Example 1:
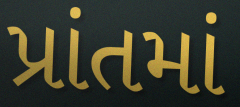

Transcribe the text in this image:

પ્રાંતમાં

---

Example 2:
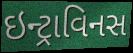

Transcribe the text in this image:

ઇન્ટ્રાવિનસ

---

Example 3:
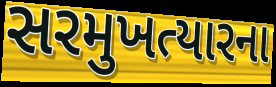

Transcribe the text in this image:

સરમુખત્યારના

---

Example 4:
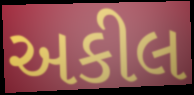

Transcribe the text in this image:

અકીલ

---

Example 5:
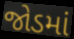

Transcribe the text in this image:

જોડમાં